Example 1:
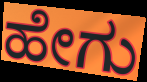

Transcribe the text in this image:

ಹೇಗು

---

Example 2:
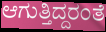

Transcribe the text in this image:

ಆಗುತ್ತಿದ್ದರಂತೆ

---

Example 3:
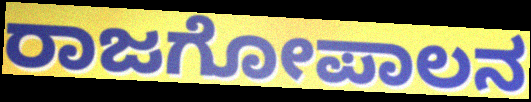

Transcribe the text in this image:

ರಾಜಗೋಪಾಲನ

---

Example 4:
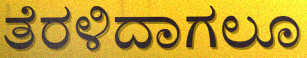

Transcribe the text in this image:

ತೆರಳಿದಾಗಲೂ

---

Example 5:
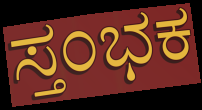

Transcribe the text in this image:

ಸ್ತಂಭಕ